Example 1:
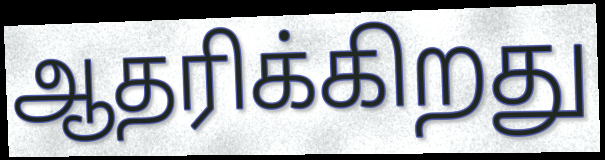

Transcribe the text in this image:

ஆதரிக்கிறது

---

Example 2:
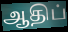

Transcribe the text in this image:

ஆதிப்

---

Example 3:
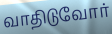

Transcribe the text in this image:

வாதிடுவோர்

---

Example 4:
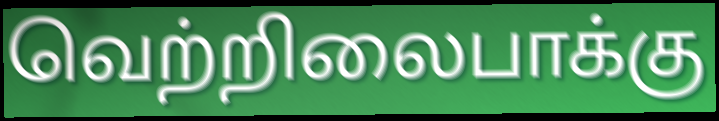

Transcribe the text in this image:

வெற்றிலைபாக்கு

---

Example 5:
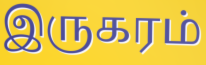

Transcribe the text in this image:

இருகரம்